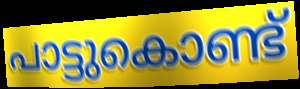
പാട്ടുകൊണ്ട്